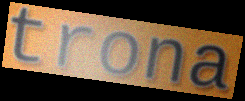
trona